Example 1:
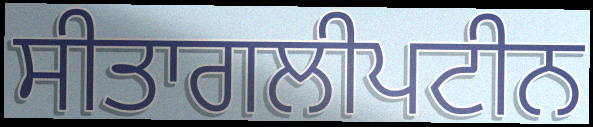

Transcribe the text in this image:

ਸੀਤਾਗਲੀਪਟੀਨ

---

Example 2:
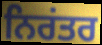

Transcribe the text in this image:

ਨਿਰਂਤਰ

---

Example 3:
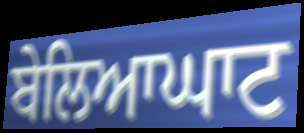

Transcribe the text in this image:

ਬੇਲਿਆਘਾਟ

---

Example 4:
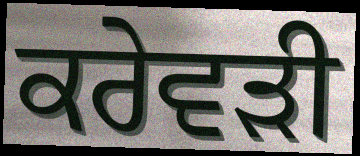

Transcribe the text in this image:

ਕਰੇਵੜੀ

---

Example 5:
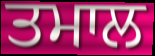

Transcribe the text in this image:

ਤਮਾਲ